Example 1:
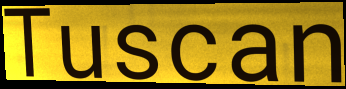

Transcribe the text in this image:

Tuscan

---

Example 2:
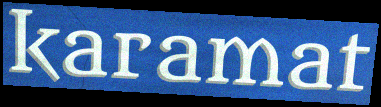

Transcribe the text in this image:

karamat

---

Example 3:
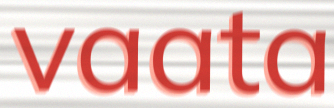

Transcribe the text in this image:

vaata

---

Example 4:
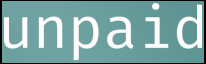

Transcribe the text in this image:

unpaid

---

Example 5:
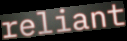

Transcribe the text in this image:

reliant